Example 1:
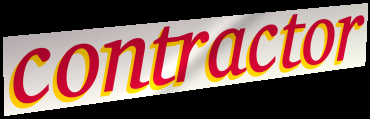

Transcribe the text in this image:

contractor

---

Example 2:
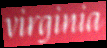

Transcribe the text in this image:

virginia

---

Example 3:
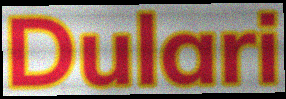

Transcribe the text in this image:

Dulari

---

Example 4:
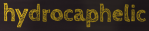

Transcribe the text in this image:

hydrocaphelic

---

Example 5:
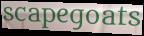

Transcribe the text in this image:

scapegoats